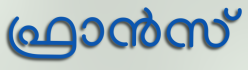
ഫ്രാൻസ്